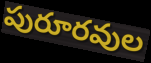
పురూరవుల